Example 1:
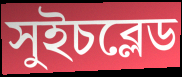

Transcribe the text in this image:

সুইচব্লেড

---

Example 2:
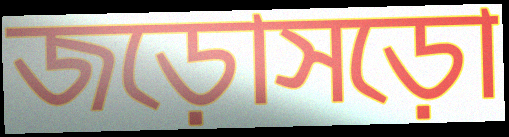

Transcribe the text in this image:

জড়োসড়ো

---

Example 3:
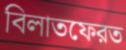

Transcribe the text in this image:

বিলাতফেরত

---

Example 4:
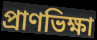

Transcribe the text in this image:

প্রাণভিক্ষা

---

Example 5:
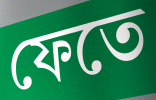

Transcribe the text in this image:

ফেতে